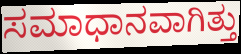
ಸಮಾಧಾನವಾಗಿತ್ತು